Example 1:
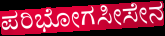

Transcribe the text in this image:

ಪರಿಭೋಗಸೀಸೇನ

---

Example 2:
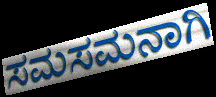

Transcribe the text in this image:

ಸಮಸಮನಾಗಿ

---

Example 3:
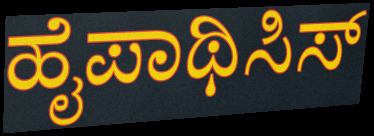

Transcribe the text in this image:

ಹೈಪಾಥಿಸಿಸ್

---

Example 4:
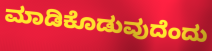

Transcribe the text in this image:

ಮಾಡಿಕೊಡುವುದೆಂದು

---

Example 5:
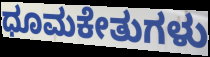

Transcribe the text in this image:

ಧೂಮಕೇತುಗಳು